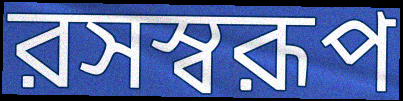
রসস্বরূপ